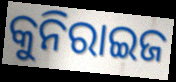
କୁନିରାଇଜ